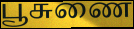
பூசுணை